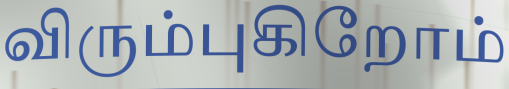
விரும்புகிறோம்